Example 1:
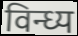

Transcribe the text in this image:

विन्ध्य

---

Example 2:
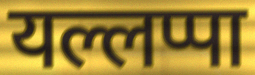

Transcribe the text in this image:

यल्लप्पा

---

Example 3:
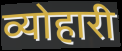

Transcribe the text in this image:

व्योहारी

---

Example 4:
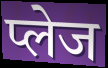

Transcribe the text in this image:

प्‍लेज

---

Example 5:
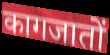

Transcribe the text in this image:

कागजातों